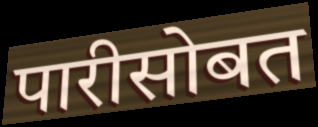
पारीसोबत